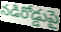
నడిరోడ్డుపై